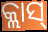
କ୍ଲାସ୍